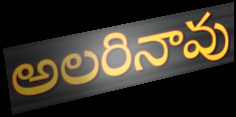
అలరినావు